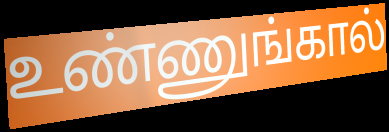
உண்ணுங்கால்